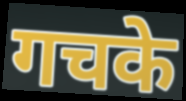
गचके